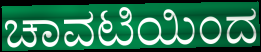
ಚಾವಟಿಯಿಂದ